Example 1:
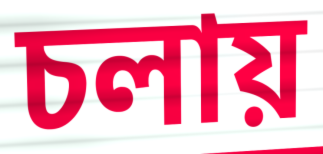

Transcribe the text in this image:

চলায়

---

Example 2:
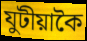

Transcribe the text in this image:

যুটীয়াকৈ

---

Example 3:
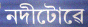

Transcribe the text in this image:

নদীটোৱে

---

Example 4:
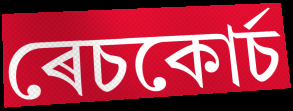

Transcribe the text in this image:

ৰেচকোৰ্চ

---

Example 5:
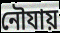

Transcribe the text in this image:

নৌযায়